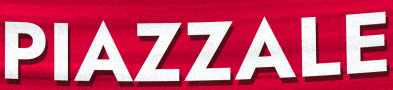
PIAZZALE